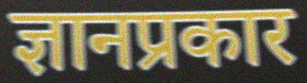
ज्ञानप्रकार